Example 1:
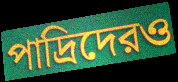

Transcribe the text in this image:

পাদ্রিদেরও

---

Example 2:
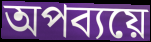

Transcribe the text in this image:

অপব্যয়ে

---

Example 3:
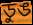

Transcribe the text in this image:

ডুঙ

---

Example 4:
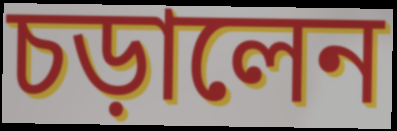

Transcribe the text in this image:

চড়ালেন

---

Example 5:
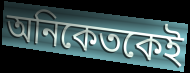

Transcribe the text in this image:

অনিকেতকেই